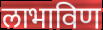
लाभाविण